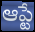
ఆప్టే